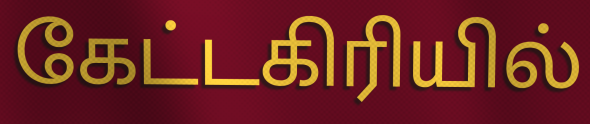
கேட்டகிரியில்